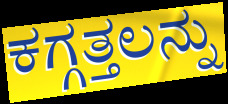
ಕಗ್ಗತ್ತಲನ್ನು